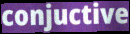
conjuctive